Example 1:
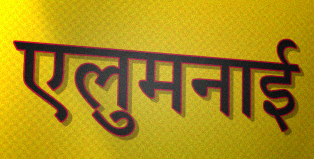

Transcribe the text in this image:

एलुमनाई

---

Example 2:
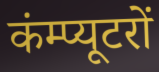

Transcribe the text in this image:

कंम्प्यूटरों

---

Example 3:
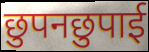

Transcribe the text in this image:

छुपनछुपाई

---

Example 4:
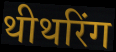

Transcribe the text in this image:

थीथरिंग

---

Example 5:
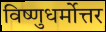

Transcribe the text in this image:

विष्णुधर्मोत्तर